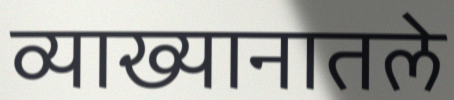
व्याख्यानातले